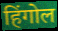
हिंगोल